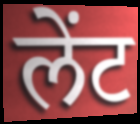
लेंट